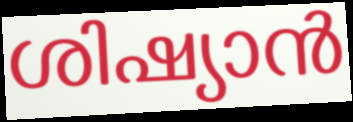
ശിഷ്യാൻ